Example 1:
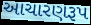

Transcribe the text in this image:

આચારણરૂપ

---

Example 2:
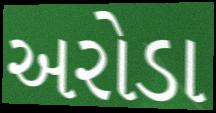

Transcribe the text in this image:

અરોડા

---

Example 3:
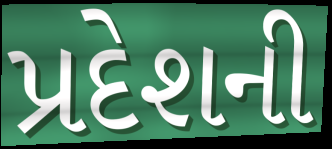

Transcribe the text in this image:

પ્રદેશની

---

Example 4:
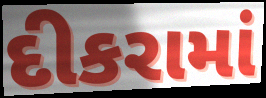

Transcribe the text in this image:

દીકરામાં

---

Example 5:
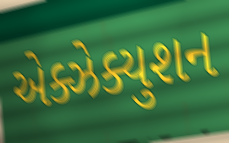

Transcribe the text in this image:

એક્ઝેક્યુશન